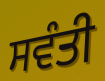
ਸਵੰਤੀ